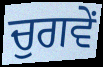
ਚੁਗਵੇਂ